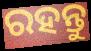
ରହନ୍ତୁ